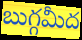
బుగ్గమీద